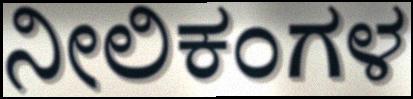
ನೀಲಿಕಂಗಳ